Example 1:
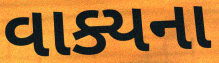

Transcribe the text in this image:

વાક્યના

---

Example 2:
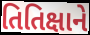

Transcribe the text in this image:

તિતિક્ષાને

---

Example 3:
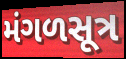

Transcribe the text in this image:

મંગળસૂત્ર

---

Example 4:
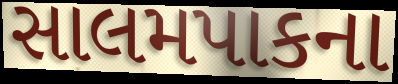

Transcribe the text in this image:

સાલમપાકના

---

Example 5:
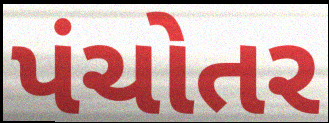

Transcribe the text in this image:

પંચોતર